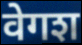
वेगश